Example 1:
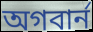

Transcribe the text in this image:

অগবার্ন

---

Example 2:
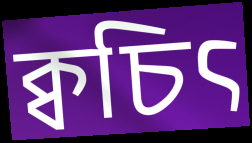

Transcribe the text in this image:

ক্বচিৎ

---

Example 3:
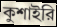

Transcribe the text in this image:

কুশাইরি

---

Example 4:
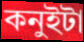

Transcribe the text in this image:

কনুইটা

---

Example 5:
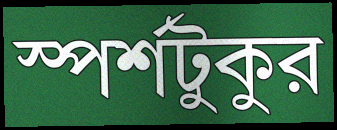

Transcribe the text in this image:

স্পর্শটুকুর